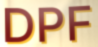
DPF